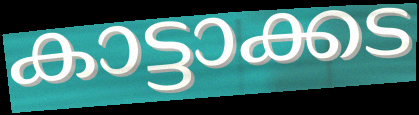
കാട്ടാക്കട